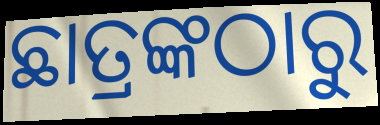
ଛାତ୍ରଙ୍କଠାରୁ